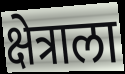
क्षेत्राला